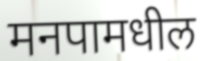
मनपामधील